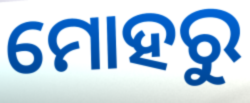
ମୋହରୁ